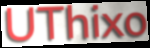
UThixo